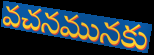
వచనమునకు